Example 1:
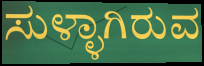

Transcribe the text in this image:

ಸುಳ್ಳಾಗಿರುವ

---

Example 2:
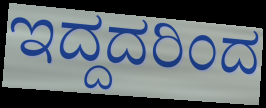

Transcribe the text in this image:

ಇದ್ದದರಿಂದ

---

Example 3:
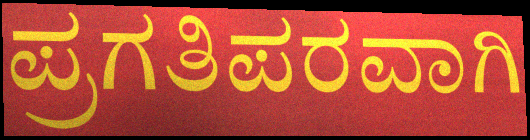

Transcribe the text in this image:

ಪ್ರಗತಿಪರವಾಗಿ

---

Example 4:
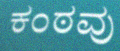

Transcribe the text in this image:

ಕಂಠವು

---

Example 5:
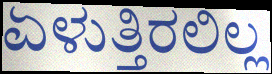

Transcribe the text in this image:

ಏಳುತ್ತಿರಲಿಲ್ಲ